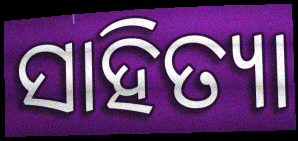
ସାହିତ୍ୟା